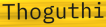
Thoguthi